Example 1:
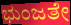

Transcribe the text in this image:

ಭುಂಜತೇ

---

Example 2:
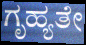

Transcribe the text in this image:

ಗೃಹ್ಯತೇ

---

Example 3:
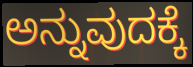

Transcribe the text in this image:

ಅನ್ನುವುದಕ್ಕೆ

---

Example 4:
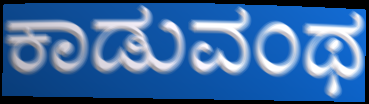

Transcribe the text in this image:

ಕಾಡುವಂಥ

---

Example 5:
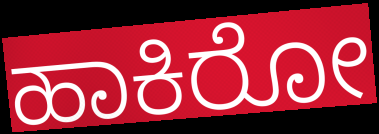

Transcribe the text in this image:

ಹಾಕಿರೋ